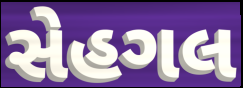
સેહગલ